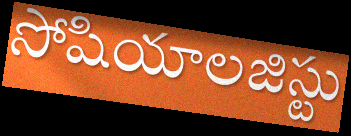
సోషియాలజిస్టు